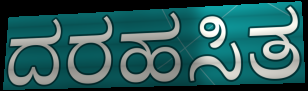
ದರಹಸಿತ